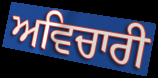
ਅਵਿਚਾਰੀ